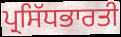
ਪ੍ਰਸਿੱਧਭਾਰਤੀ